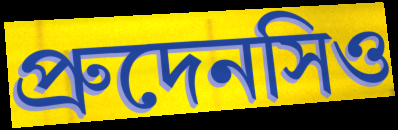
প্রুদেনসিও